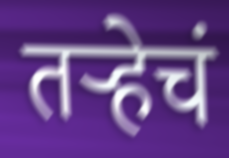
तर्‍हेचं